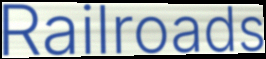
Railroads